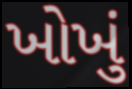
ખોખું